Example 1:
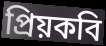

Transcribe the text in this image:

প্রিয়কবি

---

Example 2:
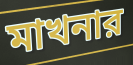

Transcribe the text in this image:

মাখনার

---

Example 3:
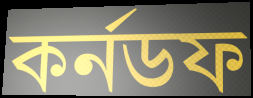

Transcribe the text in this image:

কর্নডফ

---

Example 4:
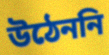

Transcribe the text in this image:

উঠেননি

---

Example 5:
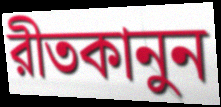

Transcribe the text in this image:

রীতকানুন